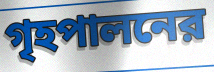
গৃহপালনের